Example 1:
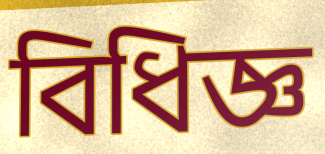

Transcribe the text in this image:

বিধিজ্ঞ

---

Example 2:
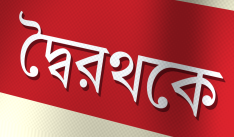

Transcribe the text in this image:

দ্বৈরথকে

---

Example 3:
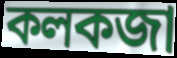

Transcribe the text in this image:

কলকজা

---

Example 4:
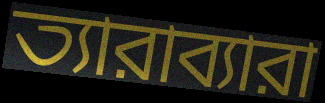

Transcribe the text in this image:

ত্যারাব্যারা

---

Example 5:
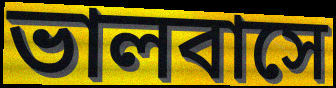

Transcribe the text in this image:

ভালবাসে